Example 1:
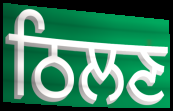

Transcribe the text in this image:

ਠਿਲਣ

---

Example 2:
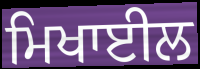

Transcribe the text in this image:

ਮਿਖਾਈਲ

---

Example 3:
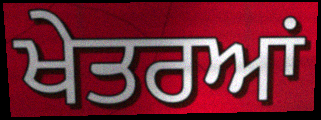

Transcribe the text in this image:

ਖੇਤਰਆਂ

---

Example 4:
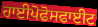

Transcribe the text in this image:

ਹਾਈਪੋਫੋਸਫਾਈਟ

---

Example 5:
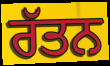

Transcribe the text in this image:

ਰੱਤਨ